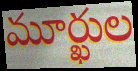
మూర్ఖుల